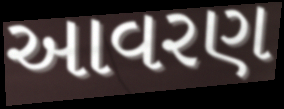
આવરણ